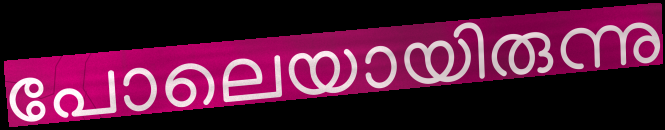
പോലെയായിരുന്നു